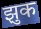
झुक